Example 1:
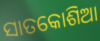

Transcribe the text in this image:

ସାତକୋଶିଆ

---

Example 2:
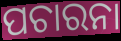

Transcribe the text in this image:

ପଚାରନା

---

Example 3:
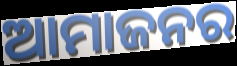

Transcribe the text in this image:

ଆମାଜନର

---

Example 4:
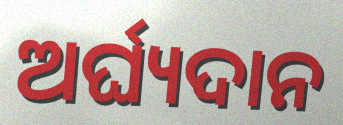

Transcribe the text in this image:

ଅର୍ଘ୍ୟଦାନ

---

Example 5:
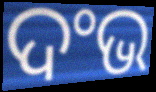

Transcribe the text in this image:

ଦଂଭ